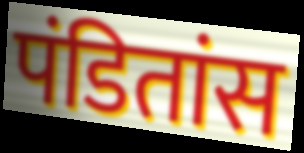
पंडितांस